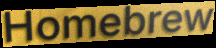
Homebrew